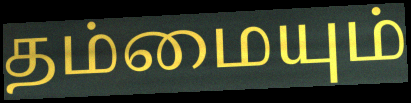
தம்மையும்